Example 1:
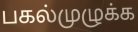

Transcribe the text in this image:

பகல்முழுக்க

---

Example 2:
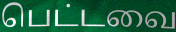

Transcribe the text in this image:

பெட்டவை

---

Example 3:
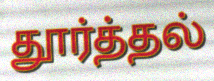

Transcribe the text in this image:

தூர்த்தல்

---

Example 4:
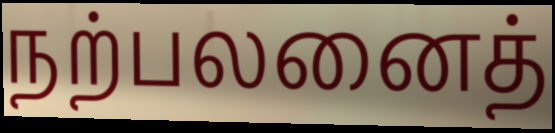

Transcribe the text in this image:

நற்பலனைத்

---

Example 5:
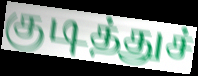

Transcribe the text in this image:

குடித்துச்